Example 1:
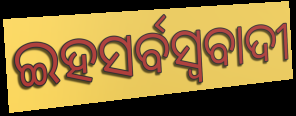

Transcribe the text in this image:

ଇହସର୍ବସ୍ୱବାଦୀ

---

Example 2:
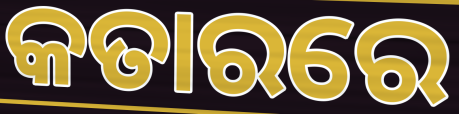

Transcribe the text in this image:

କତାରରେ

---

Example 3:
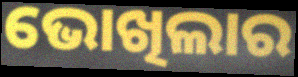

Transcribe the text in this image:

ଭୋଖିଲାର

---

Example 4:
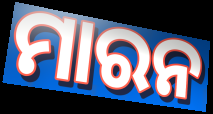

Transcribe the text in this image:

ମାରନ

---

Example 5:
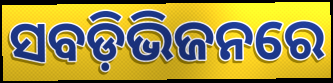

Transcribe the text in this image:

ସବଡ଼ିଭିଜନରେ